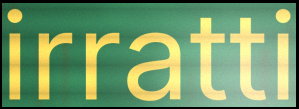
irratti